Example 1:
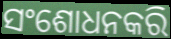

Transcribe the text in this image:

ସଂଶୋଧନକରି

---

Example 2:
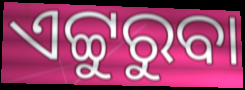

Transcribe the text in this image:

ଏଟ୍ଟୁରୁବା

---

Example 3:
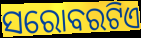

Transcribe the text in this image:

ସରୋବରଟିଏ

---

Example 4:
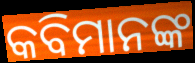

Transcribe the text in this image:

କବିମାନଙ୍କ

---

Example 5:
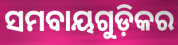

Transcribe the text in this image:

ସମବାୟଗୁଡ଼ିକର